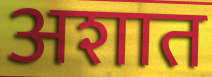
अशात